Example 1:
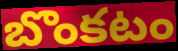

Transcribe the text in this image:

బొంకటం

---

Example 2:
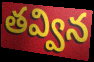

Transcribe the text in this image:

తవ్విన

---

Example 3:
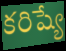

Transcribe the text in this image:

కరిష్యే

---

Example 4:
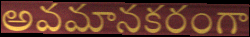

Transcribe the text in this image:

అవమానకరంగా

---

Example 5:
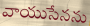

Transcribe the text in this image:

వాయుసేనను